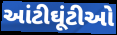
આંટીઘૂંટીઓ